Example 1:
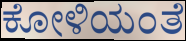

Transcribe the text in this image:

ಕೋಳಿಯಂತೆ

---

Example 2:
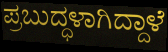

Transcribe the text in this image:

ಪ್ರಬುದ್ಧಳಾಗಿದ್ದಾಳೆ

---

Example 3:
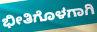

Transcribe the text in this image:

ಭೀತಿಗೊಳಗಾಗಿ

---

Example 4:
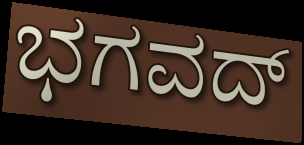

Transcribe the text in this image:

ಭಗವದ್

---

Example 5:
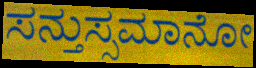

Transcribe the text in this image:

ಸನ್ತುಸ್ಸಮಾನೋ